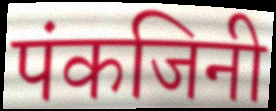
पंकजिनी